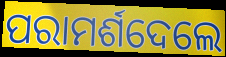
ପରାମର୍ଶଦେଲେ